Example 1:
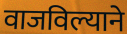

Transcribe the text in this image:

वाजविल्याने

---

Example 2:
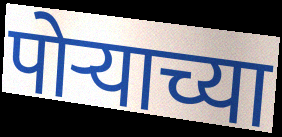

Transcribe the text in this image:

पोऱ्याच्या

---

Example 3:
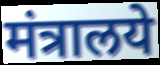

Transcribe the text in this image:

मंत्रालये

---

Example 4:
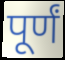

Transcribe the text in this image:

पूर्णं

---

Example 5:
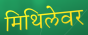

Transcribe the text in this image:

मिथिलेवर